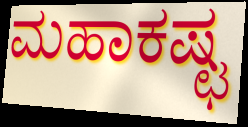
ಮಹಾಕಷ್ಟ